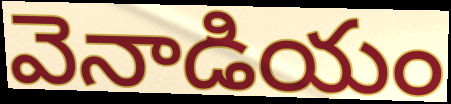
వెనాడియం